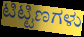
ಟಿಟ್ಟಿಣಗಳು